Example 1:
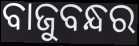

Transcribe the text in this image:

ବାଜୁବନ୍ଧର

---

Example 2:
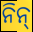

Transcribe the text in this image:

ନିନ୍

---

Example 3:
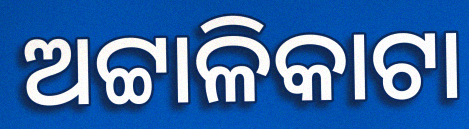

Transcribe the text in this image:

ଅଟ୍ଟାଳିକାଟା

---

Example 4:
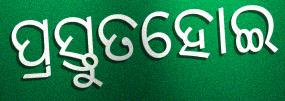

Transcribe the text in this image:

ପ୍ରସ୍ତୁତହୋଇ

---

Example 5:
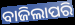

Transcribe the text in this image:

ବାଜିଲାପରି